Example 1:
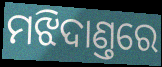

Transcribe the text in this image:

ମଝିଦାଣ୍ତରେ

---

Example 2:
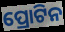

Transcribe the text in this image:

ପ୍ରୋଟିନ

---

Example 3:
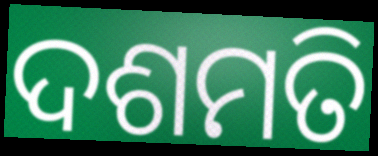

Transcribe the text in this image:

ଦଶମତି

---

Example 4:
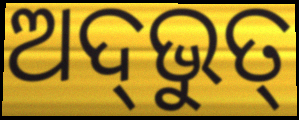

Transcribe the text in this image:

ଅଦ୍‌ଭୁତ୍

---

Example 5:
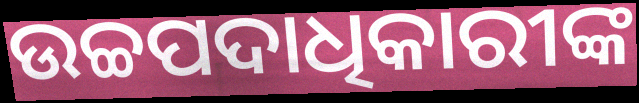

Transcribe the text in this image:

ଉଚ୍ଚପଦାଧିକାରୀଙ୍କ